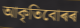
আকৃতিবোৰৰ